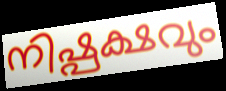
നിഷ്പക്ഷവും